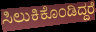
ಸಿಲುಕಿಕೊಂಡಿದ್ದರೆ